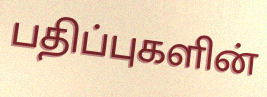
பதிப்புகளின்